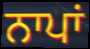
ਨਾਪਾਂ